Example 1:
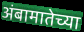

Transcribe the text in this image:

अंबामातेच्या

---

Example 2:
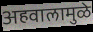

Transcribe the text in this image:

अहवालामुळे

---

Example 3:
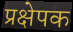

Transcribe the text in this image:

प्रक्षेपक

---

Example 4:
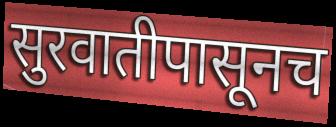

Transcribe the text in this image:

सुरवातीपासूनच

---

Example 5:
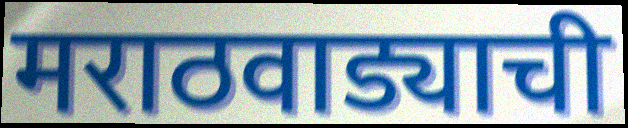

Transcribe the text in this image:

मराठवाड्याची